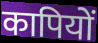
कापियों